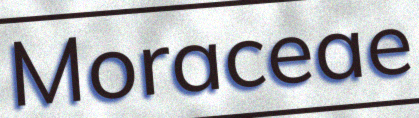
Moraceae